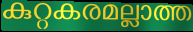
കുറ്റകരമല്ലാത്ത